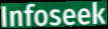
Infoseek